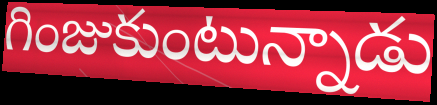
గింజుకుంటున్నాడు